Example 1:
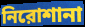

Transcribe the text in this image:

নিরোশানা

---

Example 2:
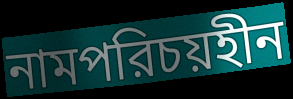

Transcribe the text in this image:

নামপরিচয়হীন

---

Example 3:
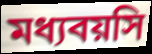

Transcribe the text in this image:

মধ্যবয়সি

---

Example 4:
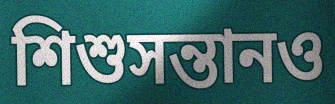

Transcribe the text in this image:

শিশুসন্তানও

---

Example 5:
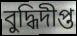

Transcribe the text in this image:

বুদ্ধিদীপ্ত